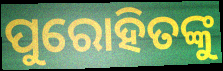
ପୁରୋହିତଙ୍କୁ